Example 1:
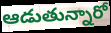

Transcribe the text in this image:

ఆడుతున్నారో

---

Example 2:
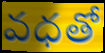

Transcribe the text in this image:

వధతో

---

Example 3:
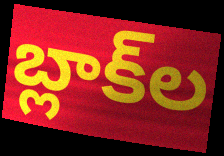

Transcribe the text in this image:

బ్లాక్‌ల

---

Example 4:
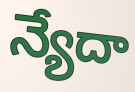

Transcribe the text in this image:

న్యేదా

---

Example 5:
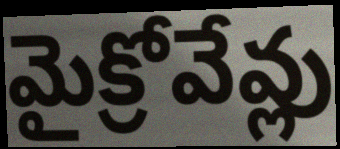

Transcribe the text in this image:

మైక్రోవేవ్లు